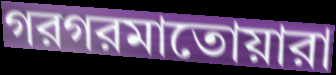
গরগরমাতোয়ারা